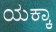
ಯಕ್ಕಾ